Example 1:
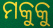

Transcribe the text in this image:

ମକୁକୁ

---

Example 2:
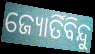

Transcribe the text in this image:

ଜ୍ୟୋର୍ତିବିନ୍ଦୁ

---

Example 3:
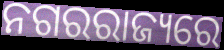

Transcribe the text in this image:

ନଗରରାଜ୍ୟରେ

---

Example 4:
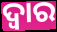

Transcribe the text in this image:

ଦ୍ୱାର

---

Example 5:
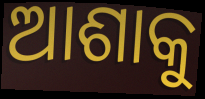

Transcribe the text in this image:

ଆଶାକୁ